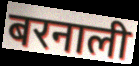
बरनाली